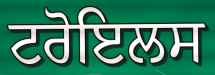
ਟਰੋਇਲਸ